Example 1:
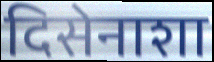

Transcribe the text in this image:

दिसेनाशा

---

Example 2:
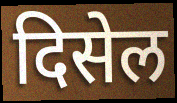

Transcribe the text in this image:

दिसेल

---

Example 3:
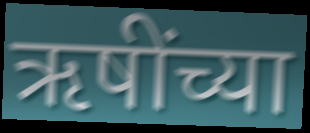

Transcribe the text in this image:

ऋषींच्या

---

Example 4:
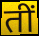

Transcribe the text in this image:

तीं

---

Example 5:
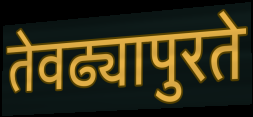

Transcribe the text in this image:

तेवढ्यापुरते